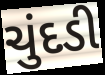
ચુંદડી